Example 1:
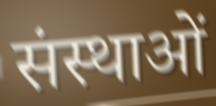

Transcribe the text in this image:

संस्‍थाओं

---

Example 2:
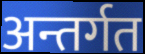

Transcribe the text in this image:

अन्‍तर्गत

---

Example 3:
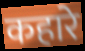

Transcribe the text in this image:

कहारे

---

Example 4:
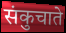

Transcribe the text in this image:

संकुचाते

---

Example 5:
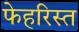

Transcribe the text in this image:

फेहरिस्त